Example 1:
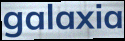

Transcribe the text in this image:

galaxia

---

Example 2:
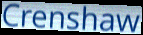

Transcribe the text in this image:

Crenshaw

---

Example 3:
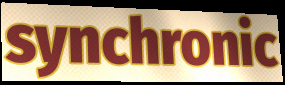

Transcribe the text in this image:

synchronic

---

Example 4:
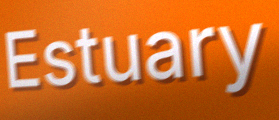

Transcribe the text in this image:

Estuary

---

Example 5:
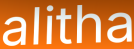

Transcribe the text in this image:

alitha